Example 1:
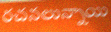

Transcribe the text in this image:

రచనలున్నాయి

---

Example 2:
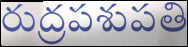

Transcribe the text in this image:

రుద్రపశుపతి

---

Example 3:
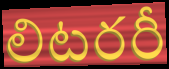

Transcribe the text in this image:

లిటరరీ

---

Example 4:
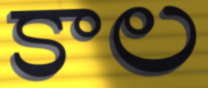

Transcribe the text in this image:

కాల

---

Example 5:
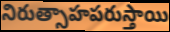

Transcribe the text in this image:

నిరుత్సాహపరుస్తాయి